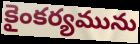
కైంకర్యమును